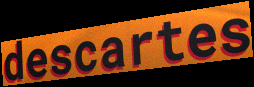
descartes